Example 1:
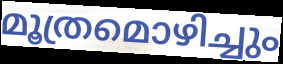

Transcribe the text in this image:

മൂത്രമൊഴിച്ചും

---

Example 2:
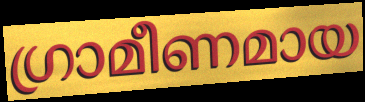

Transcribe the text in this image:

ഗ്രാമീണമായ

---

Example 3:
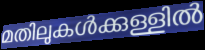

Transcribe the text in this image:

മതിലുകൾക്കുള്ളിൽ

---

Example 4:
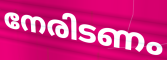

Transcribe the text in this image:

നേരിടണം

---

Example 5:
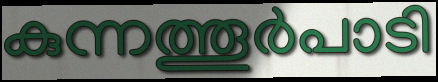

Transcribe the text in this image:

കുന്നത്തൂർപാടി